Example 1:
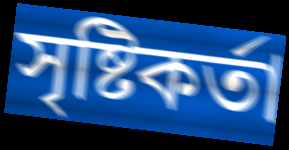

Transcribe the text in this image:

সৃষ্টিকৰ্তা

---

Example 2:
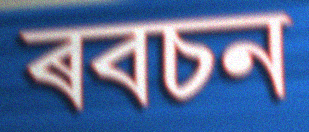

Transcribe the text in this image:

ৰবচন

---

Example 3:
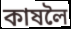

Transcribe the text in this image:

কাষলৈ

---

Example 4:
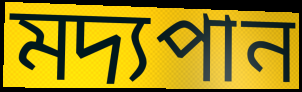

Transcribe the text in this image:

মদ্যপান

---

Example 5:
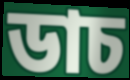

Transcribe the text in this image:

ডাচ